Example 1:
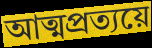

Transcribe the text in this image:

আত্মপ্রত্যয়ে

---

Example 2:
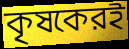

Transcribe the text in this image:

কৃষকেরই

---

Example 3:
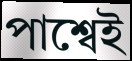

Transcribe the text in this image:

পাশ্বেই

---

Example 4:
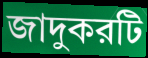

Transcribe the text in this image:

জাদুকরটি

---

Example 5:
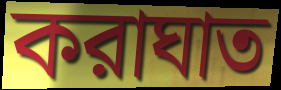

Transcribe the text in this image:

করাঘাত